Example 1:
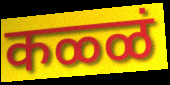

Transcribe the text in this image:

कळ्ळं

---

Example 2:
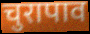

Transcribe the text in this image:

चुरापाव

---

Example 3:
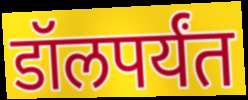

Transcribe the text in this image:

डॉलपर्यंत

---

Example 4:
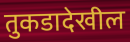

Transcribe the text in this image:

तुकडादेखील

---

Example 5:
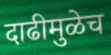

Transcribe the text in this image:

दाढीमुळेच